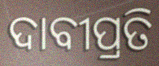
ଦାବୀପ୍ରତି